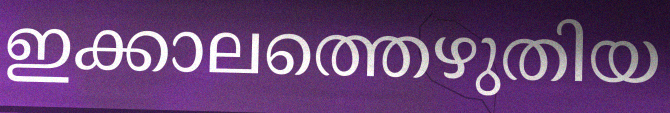
ഇക്കാലത്തെഴുതിയ